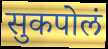
सुकपोलं